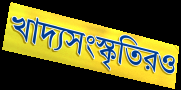
খাদ্যসংস্কৃতিরও